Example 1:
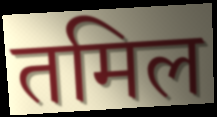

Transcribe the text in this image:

तमिल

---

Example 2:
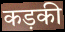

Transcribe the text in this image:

कड़की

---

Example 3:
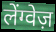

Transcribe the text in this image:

लेंग्वेज़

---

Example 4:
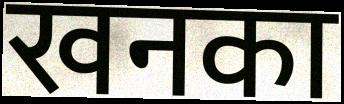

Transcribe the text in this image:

खनका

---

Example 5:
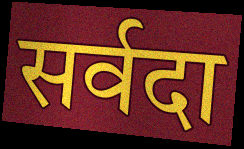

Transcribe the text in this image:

सर्वदा